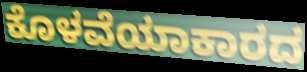
ಕೊಳವೆಯಾಕಾರದ